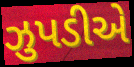
ઝુપડીએ